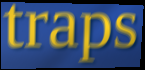
traps